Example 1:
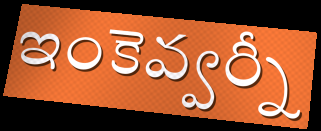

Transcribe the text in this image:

ఇంకెవ్వర్నీ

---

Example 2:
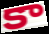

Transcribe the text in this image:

కా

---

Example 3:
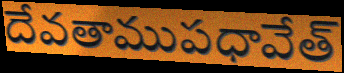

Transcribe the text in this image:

దేవతాముపధావేత్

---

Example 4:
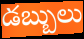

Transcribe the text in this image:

డబ్బులు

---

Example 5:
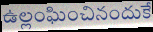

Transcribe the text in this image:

ఉల్లంఘించినందుకే